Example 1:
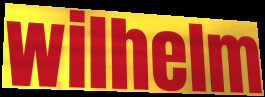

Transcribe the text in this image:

wilhelm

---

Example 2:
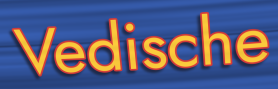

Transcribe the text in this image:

Vedische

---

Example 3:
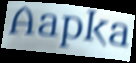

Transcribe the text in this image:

Aapka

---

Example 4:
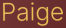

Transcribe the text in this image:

Paige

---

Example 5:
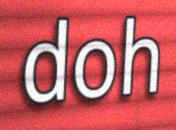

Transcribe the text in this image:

doh